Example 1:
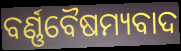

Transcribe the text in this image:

ବର୍ଣ୍ଣବୈଷମ୍ୟବାଦ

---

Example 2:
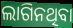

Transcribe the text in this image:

ଲାଗିନଥିବା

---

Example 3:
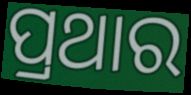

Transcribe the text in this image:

ପ୍ରଥାର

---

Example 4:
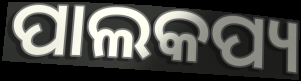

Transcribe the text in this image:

ପାଲକପ୍ୟ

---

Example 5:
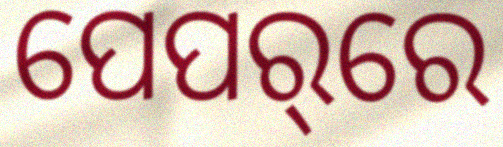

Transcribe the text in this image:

ପେପର୍‌ରେ